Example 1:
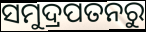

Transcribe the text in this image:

ସମୁଦ୍ରପତନରୁ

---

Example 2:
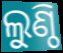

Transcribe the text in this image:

ଲୁଣ୍ଠି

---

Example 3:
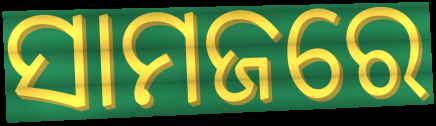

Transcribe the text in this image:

ସାମଜରେ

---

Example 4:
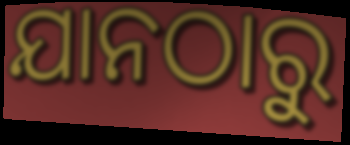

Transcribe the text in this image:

ଯାନଠାରୁ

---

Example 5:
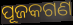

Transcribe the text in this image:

ପୂଜକଗଣ